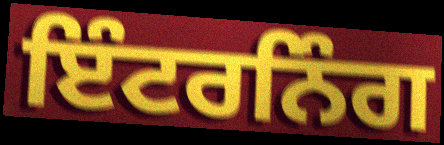
ਇੰਟਰਨਿੰਗ